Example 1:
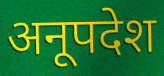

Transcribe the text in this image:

अनूपदेश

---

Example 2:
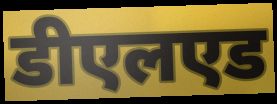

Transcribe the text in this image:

डीएलएड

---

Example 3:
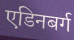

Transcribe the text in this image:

एडिनबर्ग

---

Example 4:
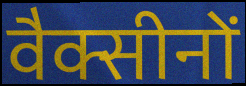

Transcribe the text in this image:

वैक्सीनों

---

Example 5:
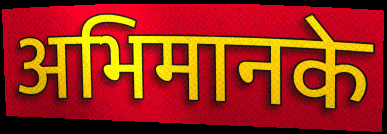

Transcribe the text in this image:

अभिमानके